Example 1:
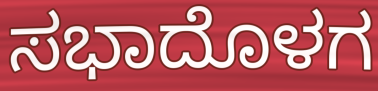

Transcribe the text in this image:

ಸಭಾದೊಳಗ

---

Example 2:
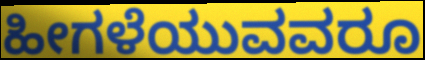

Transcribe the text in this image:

ಹೀಗಳೆಯುವವರೂ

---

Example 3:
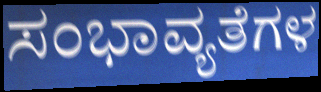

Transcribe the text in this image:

ಸಂಭಾವ್ಯತೆಗಳ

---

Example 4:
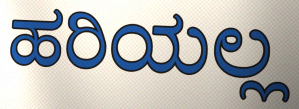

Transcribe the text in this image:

ಹರಿಯಲ್ಲ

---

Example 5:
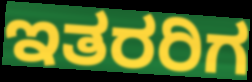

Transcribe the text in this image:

ಇತರರಿಗ